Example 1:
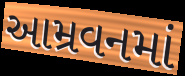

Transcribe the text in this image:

આમ્રવનમાં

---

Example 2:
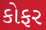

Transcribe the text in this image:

કોફર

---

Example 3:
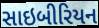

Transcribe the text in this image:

સાઇબીરિયન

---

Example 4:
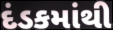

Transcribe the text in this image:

દંડકમાંથી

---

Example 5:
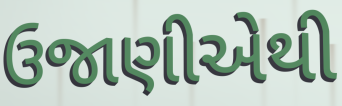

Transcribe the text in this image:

ઉજાણીએથી